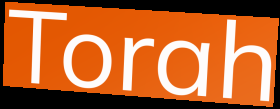
Torah